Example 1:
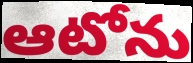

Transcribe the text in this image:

ఆటోను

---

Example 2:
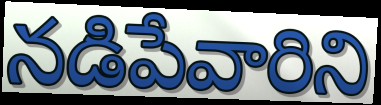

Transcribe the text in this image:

నడిపేవారిని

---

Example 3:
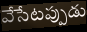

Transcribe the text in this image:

వేసేటప్పుడు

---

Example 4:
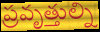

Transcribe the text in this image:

ప్రవృత్తుల్ని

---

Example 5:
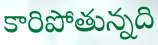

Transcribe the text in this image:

కారిపోతున్నది